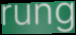
rung